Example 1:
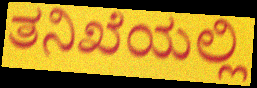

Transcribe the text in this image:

ತನಿಖೆಯಲ್ಲಿ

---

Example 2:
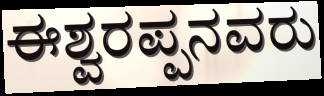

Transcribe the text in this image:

ಈಶ್ವರಪ್ಪನವರು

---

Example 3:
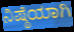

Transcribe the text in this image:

ನಿಷ್ಠೆಯಾಗಿ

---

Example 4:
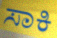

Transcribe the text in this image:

ಸಾಕಿ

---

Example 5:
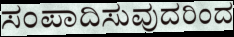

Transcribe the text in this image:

ಸಂಪಾದಿಸುವುದರಿಂದ